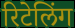
रिटेलिंग